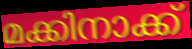
മക്കിനാക്ക്